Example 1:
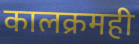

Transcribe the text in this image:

कालक्रमही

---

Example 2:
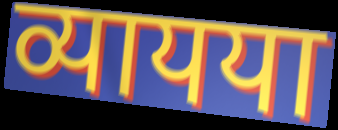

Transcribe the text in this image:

व्यायया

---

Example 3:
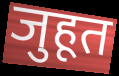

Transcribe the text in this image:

जुहूत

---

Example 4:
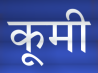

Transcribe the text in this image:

कूमी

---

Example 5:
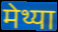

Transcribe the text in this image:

मेथ्या